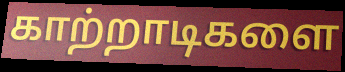
காற்றாடிகளை